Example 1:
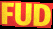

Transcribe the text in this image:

FUD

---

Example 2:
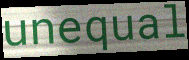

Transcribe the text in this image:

unequal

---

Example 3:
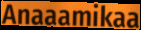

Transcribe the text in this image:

Anaaamikaa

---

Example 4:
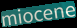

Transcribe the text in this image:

miocene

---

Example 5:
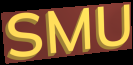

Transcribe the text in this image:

SMU